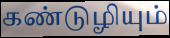
கண்டுழியும்